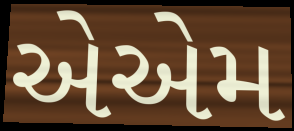
એએમ